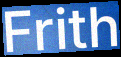
Frith